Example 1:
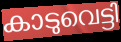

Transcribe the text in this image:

കാടുവെട്ടി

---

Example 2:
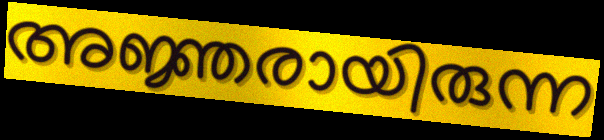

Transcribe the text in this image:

അജ്ഞരായിരുന്ന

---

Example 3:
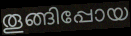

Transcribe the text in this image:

തൂങ്ങിപ്പോയ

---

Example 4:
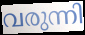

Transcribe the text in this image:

വരുന്നി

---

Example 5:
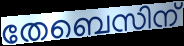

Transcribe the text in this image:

തേബെസിന്